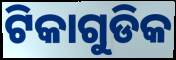
ଟିକାଗୁଡିକ